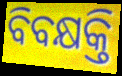
ବିବକ୍ଷକ୍ତି